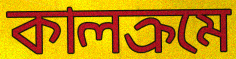
কালক্রমে